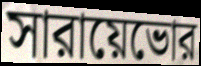
সারায়েভোর